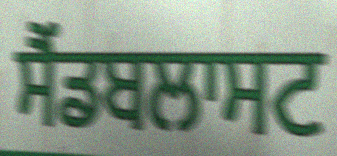
ਸੈਂਡਬਲਾਸਟ